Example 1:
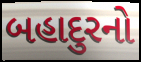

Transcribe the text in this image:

બહાદુરનો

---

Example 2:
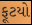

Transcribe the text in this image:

ફૂટયો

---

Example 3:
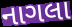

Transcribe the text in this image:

નાગલા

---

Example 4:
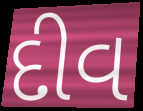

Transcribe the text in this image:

દીવ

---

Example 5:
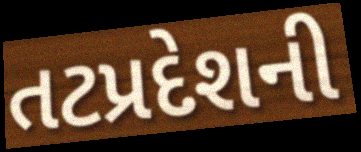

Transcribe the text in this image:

તટપ્રદેશની